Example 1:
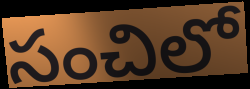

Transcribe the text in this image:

సంచిలో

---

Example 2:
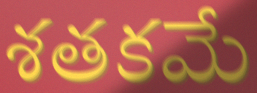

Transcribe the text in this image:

శతకమే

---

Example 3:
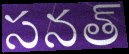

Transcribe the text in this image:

సనత్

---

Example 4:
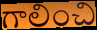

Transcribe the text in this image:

గాలించి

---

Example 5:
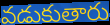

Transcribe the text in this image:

వడుకుతారు